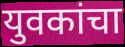
युवकांचा